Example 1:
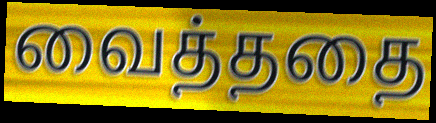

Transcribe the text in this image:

வைத்ததை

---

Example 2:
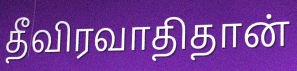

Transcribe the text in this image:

தீவிரவாதிதான்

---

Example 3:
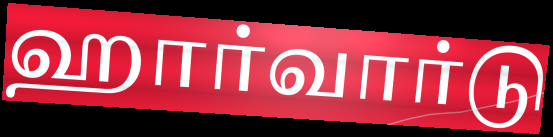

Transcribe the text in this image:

ஹார்வார்டு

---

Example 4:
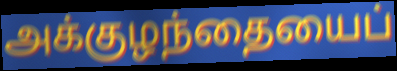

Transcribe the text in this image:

அக்குழந்தையைப்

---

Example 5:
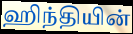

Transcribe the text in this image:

ஹிந்தியின்